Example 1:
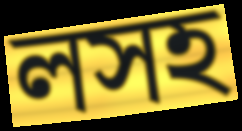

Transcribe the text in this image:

লসহ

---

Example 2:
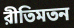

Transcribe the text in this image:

রীতিমতন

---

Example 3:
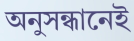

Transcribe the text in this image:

অনুসন্ধানেই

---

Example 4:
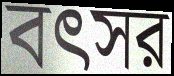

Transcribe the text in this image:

বৎসর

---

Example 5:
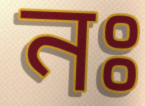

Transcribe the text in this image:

নঃ